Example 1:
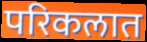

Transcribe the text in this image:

परिकलात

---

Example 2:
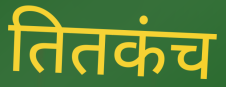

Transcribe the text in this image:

तितकंच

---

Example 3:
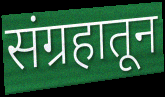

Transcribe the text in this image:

संग्रहातून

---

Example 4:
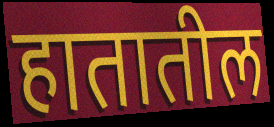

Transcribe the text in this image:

हातातील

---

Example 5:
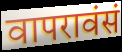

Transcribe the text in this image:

वापरावंसं